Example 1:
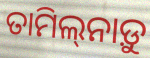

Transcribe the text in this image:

ତାମିଲ୍‌ନାଡ଼ୁ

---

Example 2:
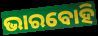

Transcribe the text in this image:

ଭାରବୋହି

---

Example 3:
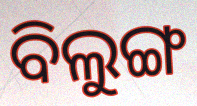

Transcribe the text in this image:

ବିଲୁଙ୍ଗ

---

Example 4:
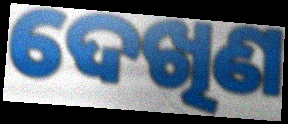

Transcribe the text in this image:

ଦେଖିଣ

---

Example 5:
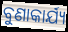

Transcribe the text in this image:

ବୁଣାକାର୍ଯ୍ୟ